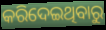
କରିଦେଇଥିବାରୁ